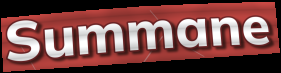
Summane